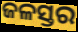
ଜଳସ୍ତର